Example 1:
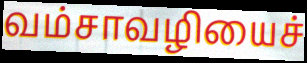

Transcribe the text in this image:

வம்சாவழியைச்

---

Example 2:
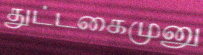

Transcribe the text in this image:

துட்டகைமுனு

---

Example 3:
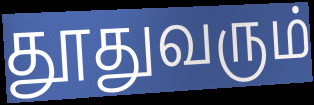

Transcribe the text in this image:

தூதுவரும்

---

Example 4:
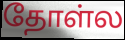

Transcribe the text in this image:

தோள்ல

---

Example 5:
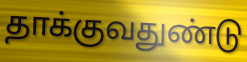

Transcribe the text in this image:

தாக்குவதுண்டு